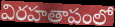
విరహతాపంలో